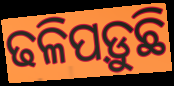
ଢଳିପଡ଼ୁଛି